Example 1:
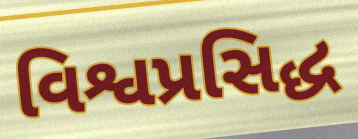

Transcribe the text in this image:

વિશ્વપ્રસિદ્ધ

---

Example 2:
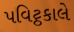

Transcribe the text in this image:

પવિટ્ઠકાલે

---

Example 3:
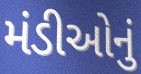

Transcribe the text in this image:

મંડીઓનું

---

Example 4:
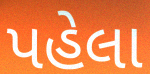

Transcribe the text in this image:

પહેલા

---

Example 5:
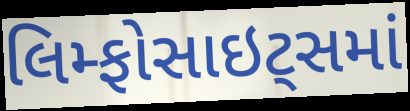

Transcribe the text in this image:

લિમ્ફોસાઇટ્સમાં